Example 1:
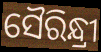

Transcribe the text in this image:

ସୈରିନ୍ଧ୍ରୀ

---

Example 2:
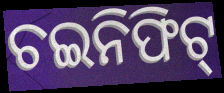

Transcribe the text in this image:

ଚଇନିଫିଟ୍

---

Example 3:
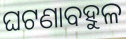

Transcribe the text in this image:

ଘଟଣାବହୁଳ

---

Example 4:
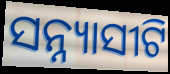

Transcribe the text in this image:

ସନ୍ନ୍ୟାସୀଟି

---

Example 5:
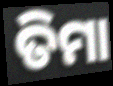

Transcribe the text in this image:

ତିମା